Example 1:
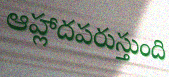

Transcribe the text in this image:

ఆహ్లాదపరుస్తుంది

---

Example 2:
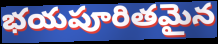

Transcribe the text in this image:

భయపూరితమైన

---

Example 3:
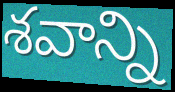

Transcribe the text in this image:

శవాన్ని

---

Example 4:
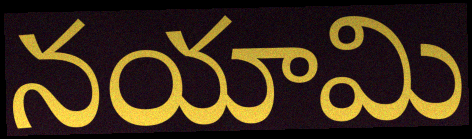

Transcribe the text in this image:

నయామి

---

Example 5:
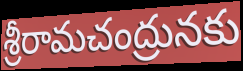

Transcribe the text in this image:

శ్రీరామచంద్రునకు